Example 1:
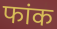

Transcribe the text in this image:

फांक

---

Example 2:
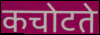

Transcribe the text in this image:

कचोटते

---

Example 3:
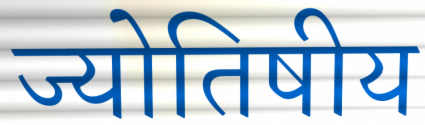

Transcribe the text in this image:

ज्योतिषीय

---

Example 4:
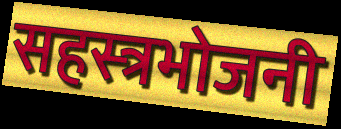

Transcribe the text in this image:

सहस्त्रभोजनी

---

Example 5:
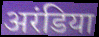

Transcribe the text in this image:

अरंडिया